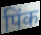
पिंक